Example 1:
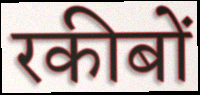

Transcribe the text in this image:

रकीबों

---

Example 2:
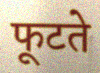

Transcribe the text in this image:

फूटते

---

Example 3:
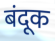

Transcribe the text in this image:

बंदूक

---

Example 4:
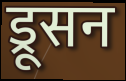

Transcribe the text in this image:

ड्रूसन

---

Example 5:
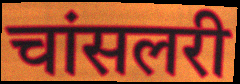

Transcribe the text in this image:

चांसलरी